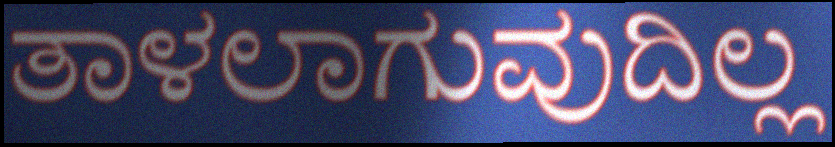
ತಾಳಲಾಗುವುದಿಲ್ಲ